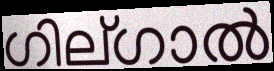
ഗില്ഗാൽ